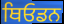
ਥਿਓਡਨ